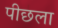
पीछला